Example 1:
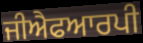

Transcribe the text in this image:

ਜੀਐਫਆਰਪੀ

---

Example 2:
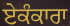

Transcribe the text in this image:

ਏਕੰਕਾਰਾ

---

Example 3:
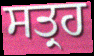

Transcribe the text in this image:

ਸਤ੍ਰਹ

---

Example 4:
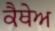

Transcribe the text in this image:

ਕੈਥੇਅ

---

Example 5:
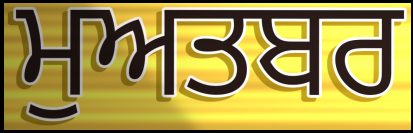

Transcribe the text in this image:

ਮੁਅਤਬਰ